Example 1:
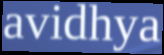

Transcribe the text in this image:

avidhya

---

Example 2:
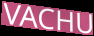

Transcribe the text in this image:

VACHU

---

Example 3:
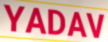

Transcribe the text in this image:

YADAV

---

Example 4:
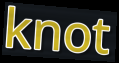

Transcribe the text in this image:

knot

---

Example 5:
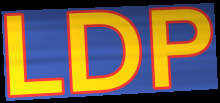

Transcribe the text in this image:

LDP